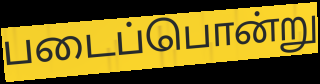
படைப்பொன்று